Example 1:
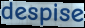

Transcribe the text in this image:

despise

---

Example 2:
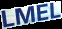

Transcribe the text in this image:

LMEL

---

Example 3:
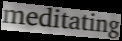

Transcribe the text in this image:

meditating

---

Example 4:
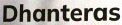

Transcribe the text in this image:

Dhanteras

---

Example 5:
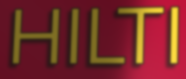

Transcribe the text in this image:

HILTI